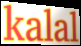
kalal